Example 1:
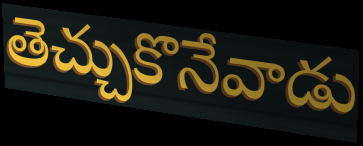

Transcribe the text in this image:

తెచ్చుకొనేవాడు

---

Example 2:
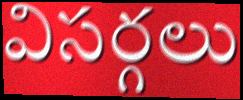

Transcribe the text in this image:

విసర్గలు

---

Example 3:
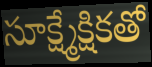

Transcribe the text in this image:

సూక్ష్మేక్షికతో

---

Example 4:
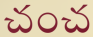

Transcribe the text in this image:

చంచ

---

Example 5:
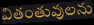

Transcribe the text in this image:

వితంతువులను